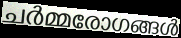
ചർമ്മരോഗങ്ങൾ